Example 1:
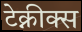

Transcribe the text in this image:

टेक्नीक्स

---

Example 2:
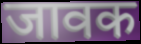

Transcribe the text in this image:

जावक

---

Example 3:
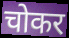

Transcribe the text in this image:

चोकर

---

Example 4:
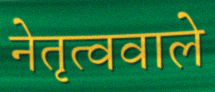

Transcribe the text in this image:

नेतृत्ववाले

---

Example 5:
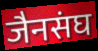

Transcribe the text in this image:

जैनसंघ